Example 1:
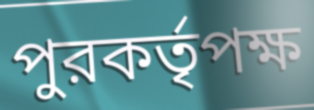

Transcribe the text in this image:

পুরকর্তৃপক্ষ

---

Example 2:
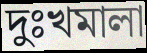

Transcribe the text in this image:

দুঃখমালা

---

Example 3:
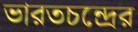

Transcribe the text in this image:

ভারতচন্দ্রের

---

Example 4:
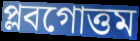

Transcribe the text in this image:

প্লবগোত্তম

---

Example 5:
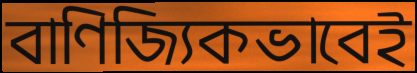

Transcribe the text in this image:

বাণিজ্যিকভাবেই